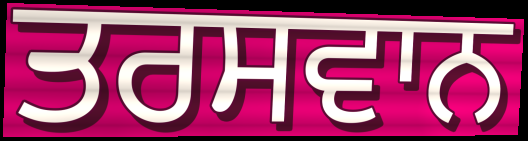
ਤਰਸਵਾਨ